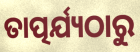
ତାତ୍ପର୍ଯ୍ୟଠାରୁ